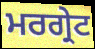
ਮਰਗ੍ਰੇਟ